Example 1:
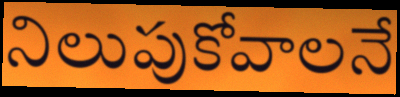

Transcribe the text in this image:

నిలుపుకోవాలనే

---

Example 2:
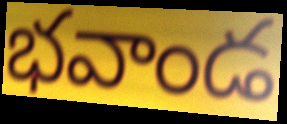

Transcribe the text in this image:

భవాండ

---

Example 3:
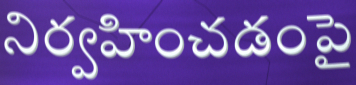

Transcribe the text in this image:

నిర్వహించడంపై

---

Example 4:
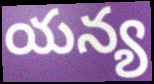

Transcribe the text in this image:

యన్య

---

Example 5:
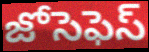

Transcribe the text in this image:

జోసెఫెస్